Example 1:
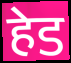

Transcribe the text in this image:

हेड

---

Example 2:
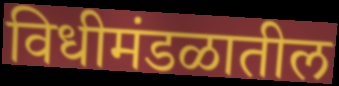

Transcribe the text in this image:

विधीमंडळातील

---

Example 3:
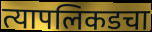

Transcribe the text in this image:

त्यापलिकडचा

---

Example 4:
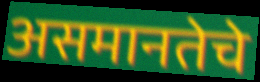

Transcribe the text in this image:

असमानतेचे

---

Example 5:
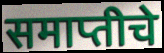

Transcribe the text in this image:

समाप्तीचे